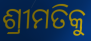
ଶ୍ରୀମତିକୁ